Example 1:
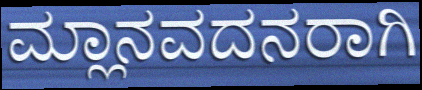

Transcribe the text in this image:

ಮ್ಲಾನವದನರಾಗಿ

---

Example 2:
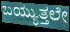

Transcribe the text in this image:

ಬಯ್ಯುತ್ತಲೇ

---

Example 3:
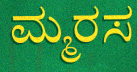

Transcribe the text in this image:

ಮ್ಮರಸ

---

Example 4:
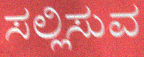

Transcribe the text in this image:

ಸಲ್ಲಿಸುವ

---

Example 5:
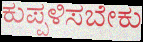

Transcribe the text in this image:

ಕುಪ್ಪಳಿಸಬೇಕು